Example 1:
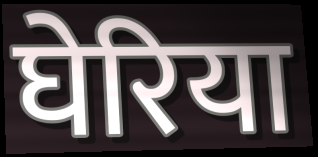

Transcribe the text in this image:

घेरिया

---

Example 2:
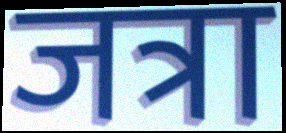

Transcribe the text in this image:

जत्रा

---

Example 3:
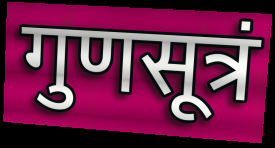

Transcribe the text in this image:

गुणसूत्रं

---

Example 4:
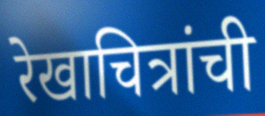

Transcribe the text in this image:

रेखाचित्रांची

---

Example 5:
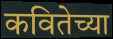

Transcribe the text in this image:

कवितेच्या